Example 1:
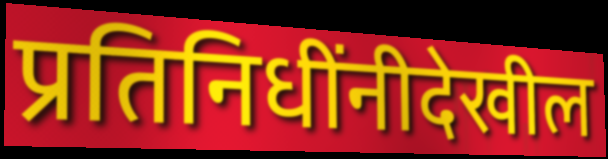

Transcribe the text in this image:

प्रतिनिधींनीदेखील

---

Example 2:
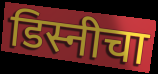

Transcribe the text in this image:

डिस्नीचा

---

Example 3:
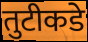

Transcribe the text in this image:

तुटीकडे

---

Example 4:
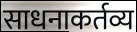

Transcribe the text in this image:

साधनाकर्तव्य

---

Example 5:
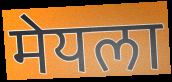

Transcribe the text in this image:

मेयला